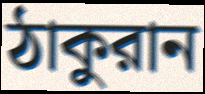
ঠাকুরান